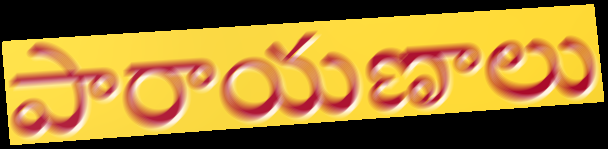
పారాయణాలు